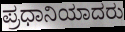
ಪ್ರಧಾನಿಯಾದರು